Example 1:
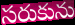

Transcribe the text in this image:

సరుకును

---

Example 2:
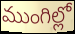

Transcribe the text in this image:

ముంగిల్లో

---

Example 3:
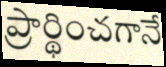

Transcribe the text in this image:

ప్రార్థించగానే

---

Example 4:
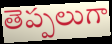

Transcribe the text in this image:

తెప్పలుగా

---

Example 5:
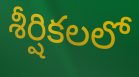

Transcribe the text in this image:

శీర్షికలలో